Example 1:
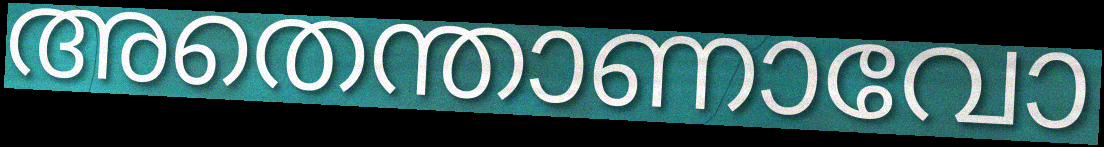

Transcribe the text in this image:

അതെന്താണാവോ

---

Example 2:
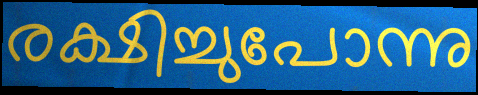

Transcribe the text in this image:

രക്ഷിച്ചുപോന്നു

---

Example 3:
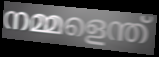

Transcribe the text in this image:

നമ്മളെന്ത്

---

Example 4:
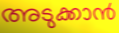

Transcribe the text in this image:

അടുക്കാൻ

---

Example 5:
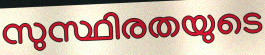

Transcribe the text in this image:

സുസ്ഥിരതയുടെ